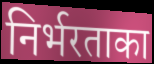
निर्भरताका